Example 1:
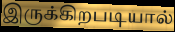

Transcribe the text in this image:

இருக்கிறபடியால்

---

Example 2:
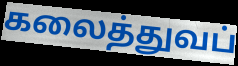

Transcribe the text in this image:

கலைத்துவப்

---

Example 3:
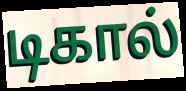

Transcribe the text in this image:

டிகால்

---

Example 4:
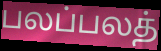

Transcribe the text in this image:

பலப்பலத்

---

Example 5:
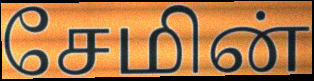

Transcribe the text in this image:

சேமின்